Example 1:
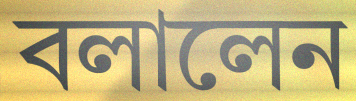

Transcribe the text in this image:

বলালেন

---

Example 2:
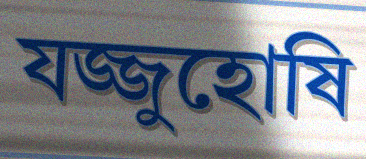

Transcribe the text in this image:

যজ্জুহোষি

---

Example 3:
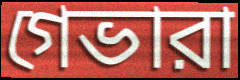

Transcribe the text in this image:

গেভারা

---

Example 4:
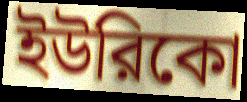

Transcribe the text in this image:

ইউরিকো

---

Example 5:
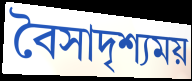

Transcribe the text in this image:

বৈসাদৃশ্যময়